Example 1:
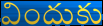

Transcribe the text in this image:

విందుకు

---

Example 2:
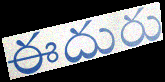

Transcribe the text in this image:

ఈదురు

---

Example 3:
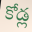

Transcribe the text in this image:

కోడ్ల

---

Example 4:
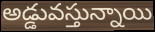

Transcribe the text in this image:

అడ్డువస్తున్నాయి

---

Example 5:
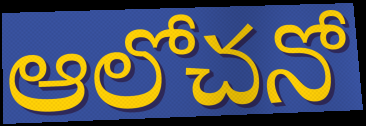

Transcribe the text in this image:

ఆలోచనో